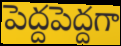
పెద్దపెద్దగా